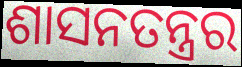
ଶାସନତନ୍ତ୍ରର